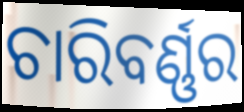
ଚାରିବର୍ଣ୍ଣର